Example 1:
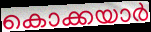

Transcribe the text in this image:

കൊക്കയാർ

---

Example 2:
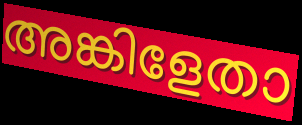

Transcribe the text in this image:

അങ്കിളേതാ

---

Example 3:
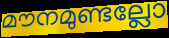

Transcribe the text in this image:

മൗനമുണ്ടല്ലോ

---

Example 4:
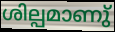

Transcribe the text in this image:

ശില്പമാണു്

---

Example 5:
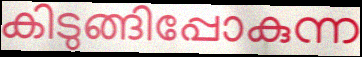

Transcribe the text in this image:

കിടുങ്ങിപ്പോകുന്ന